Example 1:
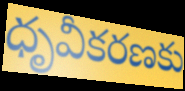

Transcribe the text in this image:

ధృవీకరణకు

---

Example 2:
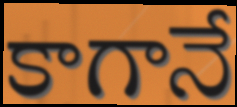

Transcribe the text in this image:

కాగానే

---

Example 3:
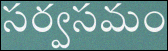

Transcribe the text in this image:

సర్వసమం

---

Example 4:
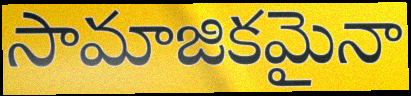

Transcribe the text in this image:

సామాజికమైనా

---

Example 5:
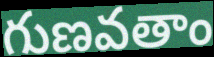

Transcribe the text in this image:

గుణవతాం